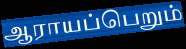
ஆராயப்பெறும்